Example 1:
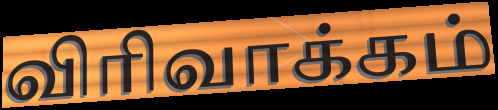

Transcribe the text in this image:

விரிவாக்கம்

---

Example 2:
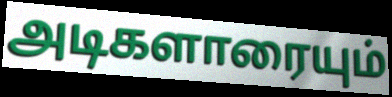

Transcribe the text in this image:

அடிகளாரையும்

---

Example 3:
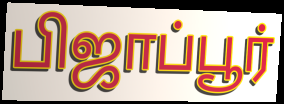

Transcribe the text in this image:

பிஜாப்பூர்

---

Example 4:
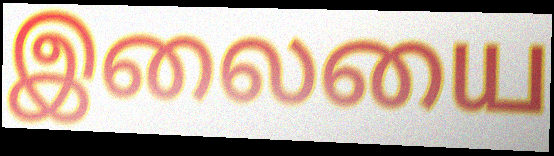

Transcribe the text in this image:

இலையை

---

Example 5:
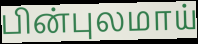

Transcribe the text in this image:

பின்புலமாய்